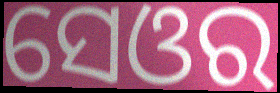
ସେଓର